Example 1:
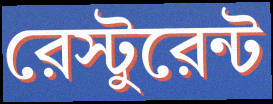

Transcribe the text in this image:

রেস্টুরেন্ট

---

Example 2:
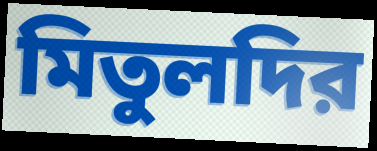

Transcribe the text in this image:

মিতুলদির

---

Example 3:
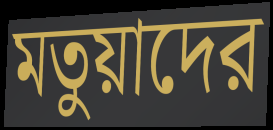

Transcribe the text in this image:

মতুয়াদের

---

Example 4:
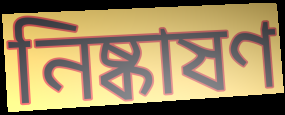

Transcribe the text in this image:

নিষ্কাষণ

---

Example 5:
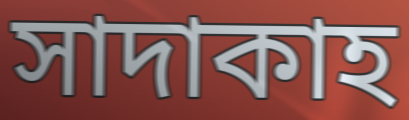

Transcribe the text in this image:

সাদাকাহ